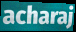
acharaj